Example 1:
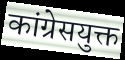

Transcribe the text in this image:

कांग्रेसयुक्त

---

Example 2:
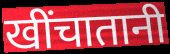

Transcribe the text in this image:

खींचातानी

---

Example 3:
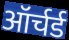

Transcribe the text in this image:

ऑर्चर्ड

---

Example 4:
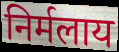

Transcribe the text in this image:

निर्मलाय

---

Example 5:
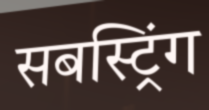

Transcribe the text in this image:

सबस्ट्रिंग